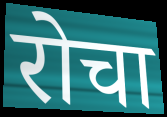
रोचा